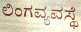
ಲಿಂಗವ್ಯವಸ್ಥೆ